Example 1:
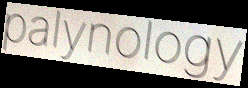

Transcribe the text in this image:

palynology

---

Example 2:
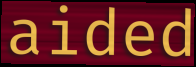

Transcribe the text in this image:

aided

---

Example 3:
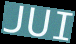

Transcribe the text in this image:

JUI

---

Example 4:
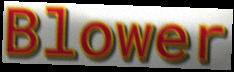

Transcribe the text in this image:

Blower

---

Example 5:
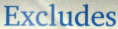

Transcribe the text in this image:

Excludes